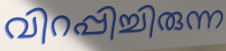
വിറപ്പിച്ചിരുന്ന